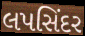
લપસિંદર